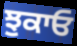
ਝੁਕਾਓ